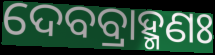
ଦେବବ୍ରାହ୍ମଣଃ